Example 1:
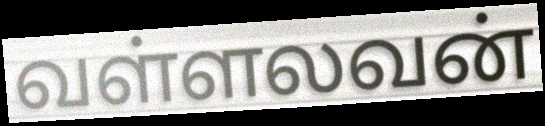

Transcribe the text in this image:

வள்ளலவன்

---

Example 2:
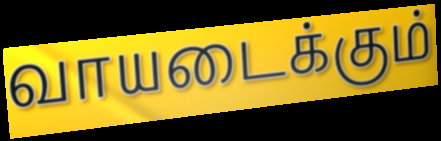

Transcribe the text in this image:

வாயடைக்கும்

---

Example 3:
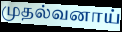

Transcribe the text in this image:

முதல்வனாய்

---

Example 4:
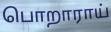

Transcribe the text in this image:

பொறாராய்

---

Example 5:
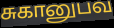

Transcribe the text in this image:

சுகானுபவ